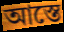
আস্তে